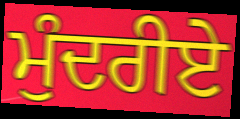
ਮੁੰਦਰੀਏ